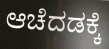
ಆಚೆದಡಕ್ಕೆ